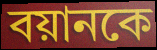
বয়ানকে